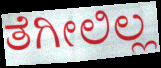
ತೆಗೀಲಿಲ್ಲ